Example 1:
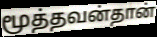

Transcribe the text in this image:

மூத்தவன்தான்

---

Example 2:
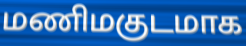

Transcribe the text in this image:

மணிமகுடமாக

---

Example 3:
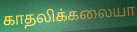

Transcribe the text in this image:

காதலிக்கலையா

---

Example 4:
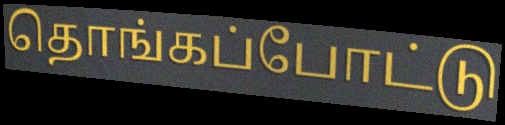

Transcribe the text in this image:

தொங்கப்போட்டு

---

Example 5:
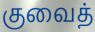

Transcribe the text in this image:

குவைத்